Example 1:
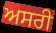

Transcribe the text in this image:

ਅਸਰੀ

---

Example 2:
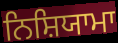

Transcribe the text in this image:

ਨਿਸ਼ਿਯਾਮਾ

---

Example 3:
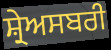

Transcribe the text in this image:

ਸ਼੍ਰੇਅਸਬਰੀ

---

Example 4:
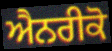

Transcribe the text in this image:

ਐਨਰੀਕੋ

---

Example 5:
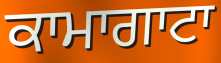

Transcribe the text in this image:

ਕਾਮਾਗਾਟਾ